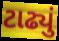
ટાઢ્યું